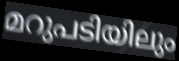
മറുപടിയിലും